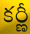
కర్ణీ